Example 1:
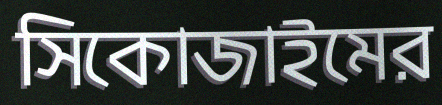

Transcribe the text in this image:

সিকোজাইমের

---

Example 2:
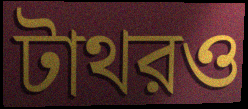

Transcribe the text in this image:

টাথরও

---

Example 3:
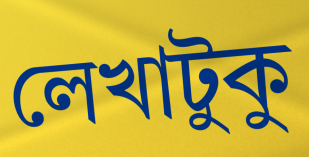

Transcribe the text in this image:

লেখাটুকু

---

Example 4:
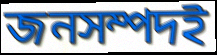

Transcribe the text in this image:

জনসম্পদই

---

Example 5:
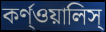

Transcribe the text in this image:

কর্ণ্ওয়ালিস্